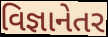
વિજ્ઞાનેતર